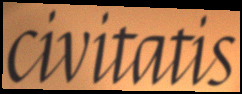
civitatis